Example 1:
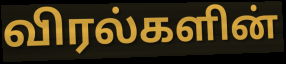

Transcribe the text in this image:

விரல்களின்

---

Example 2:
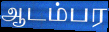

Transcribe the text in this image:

ஆடம்பர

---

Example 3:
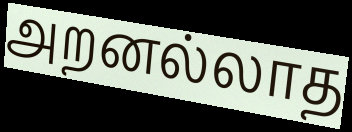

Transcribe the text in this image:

அறனல்லாத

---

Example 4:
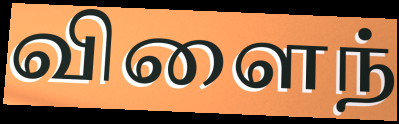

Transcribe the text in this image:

விளைந்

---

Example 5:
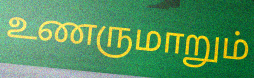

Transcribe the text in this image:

உணருமாறும்